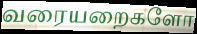
வரையறைகளோ